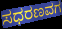
ಸಧರಣವಗ